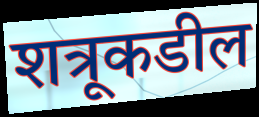
शत्रूकडील